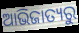
ଆଭିଜାତ୍ୟରୁ